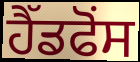
ਹੈੱਡਫੋਂਸ